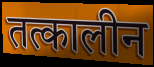
तत्कालीन